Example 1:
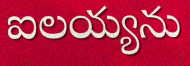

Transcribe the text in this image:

ఐలయ్యను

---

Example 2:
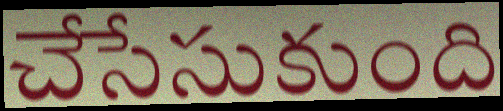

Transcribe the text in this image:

చేసేసుకుంది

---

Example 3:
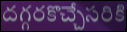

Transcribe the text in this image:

దగ్గరకొచ్చేసరికి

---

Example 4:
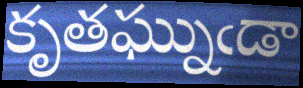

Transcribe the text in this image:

కృతఘ్నుఁడా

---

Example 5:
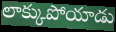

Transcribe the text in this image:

లాక్కుపోయాడు